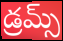
డ్రమ్స్